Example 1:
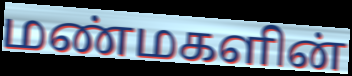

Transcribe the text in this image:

மண்மகளின்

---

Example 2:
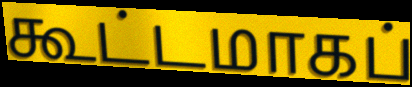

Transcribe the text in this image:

கூட்டமாகப்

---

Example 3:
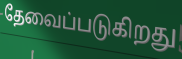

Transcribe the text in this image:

தேவைப்படுகிறது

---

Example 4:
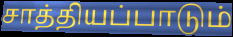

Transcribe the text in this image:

சாத்தியப்பாடும்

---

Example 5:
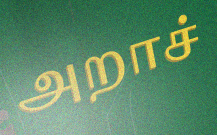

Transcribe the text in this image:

அறாச்